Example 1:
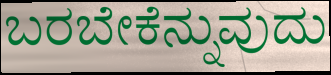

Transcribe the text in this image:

ಬರಬೇಕೆನ್ನುವುದು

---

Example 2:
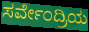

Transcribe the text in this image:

ಸರ್ವೇಂದ್ರಿಯ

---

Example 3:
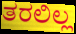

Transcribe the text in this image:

ತರಲಿಲ್ಲ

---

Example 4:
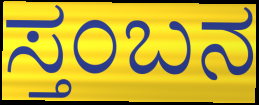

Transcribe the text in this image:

ಸ್ತಂಬನ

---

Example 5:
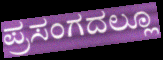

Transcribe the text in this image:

ಪ್ರಸಂಗದಲ್ಲೂ